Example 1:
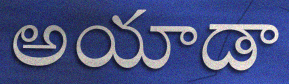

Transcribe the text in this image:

అయాడా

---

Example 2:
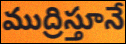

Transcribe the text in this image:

ముద్రిస్తూనే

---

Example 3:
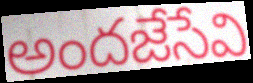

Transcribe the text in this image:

అందజేసేవి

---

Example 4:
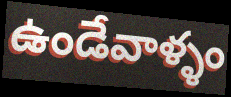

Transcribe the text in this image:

ఉండేవాళ్ళం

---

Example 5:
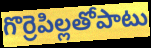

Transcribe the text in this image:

గొర్రెపిల్లతోపాటు